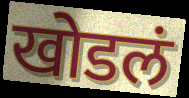
खोडलं